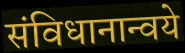
संविधानान्वये